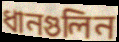
ধানগুলিন